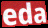
eda